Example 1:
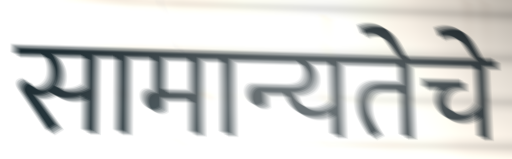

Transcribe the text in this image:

सामान्यतेचे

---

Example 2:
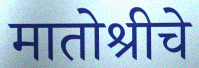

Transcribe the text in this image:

मातोश्रीचे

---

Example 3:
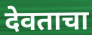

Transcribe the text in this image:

देवताचा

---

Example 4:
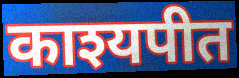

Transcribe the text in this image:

काश्यपीत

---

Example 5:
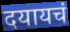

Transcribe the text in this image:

दयायचं